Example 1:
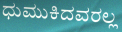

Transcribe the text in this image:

ಧುಮುಕಿದವರಲ್ಲ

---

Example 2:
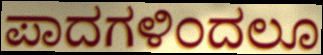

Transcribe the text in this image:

ಪಾದಗಳಿಂದಲೂ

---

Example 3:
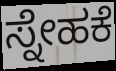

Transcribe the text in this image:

ಸ್ನೇಹಕೆ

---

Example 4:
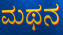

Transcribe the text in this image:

ಮಥನ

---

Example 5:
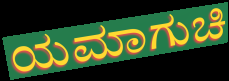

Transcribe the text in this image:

ಯಮಾಗುಚಿ